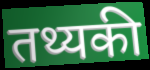
तथ्यकी